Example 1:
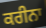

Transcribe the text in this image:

ਕਰੀਨਾ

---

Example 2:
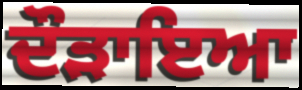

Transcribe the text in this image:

ਦੌੜਾਇਆ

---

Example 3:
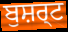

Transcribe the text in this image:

ਬੁਸ਼ਰ੍ਟ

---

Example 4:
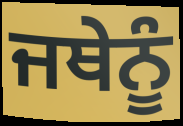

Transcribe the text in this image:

ਜਥੇਨੂੰ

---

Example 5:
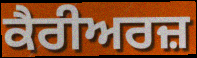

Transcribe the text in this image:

ਕੈਰੀਅਰਜ਼